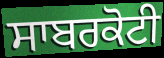
ਸਾਬਰਕੋਟੀ